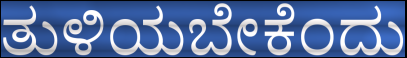
ತುಳಿಯಬೇಕೆಂದು